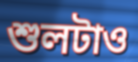
শুলটাও